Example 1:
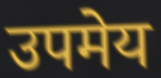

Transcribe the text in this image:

उपमेय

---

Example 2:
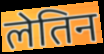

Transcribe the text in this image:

लेतिन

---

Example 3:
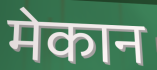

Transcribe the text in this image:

मेकान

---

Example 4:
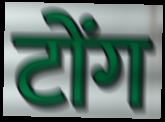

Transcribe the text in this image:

टोंग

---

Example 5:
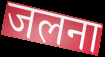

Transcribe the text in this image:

जलना